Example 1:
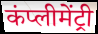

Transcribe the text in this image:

कंप्लीमेंट्री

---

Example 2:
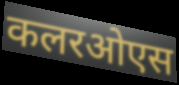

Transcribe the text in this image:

कलरओएस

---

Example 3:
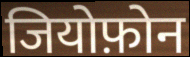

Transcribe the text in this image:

जियोफ़ोन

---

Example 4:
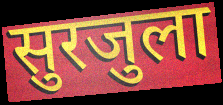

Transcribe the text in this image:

सुरजुला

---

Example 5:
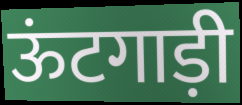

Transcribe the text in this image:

ऊंटगाड़ी